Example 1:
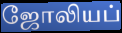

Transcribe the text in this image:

ஜோலியப்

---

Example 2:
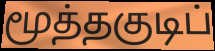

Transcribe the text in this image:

மூத்தகுடிப்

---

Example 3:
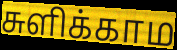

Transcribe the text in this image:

சுளிக்காம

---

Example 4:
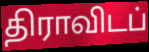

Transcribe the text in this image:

திராவிடப்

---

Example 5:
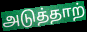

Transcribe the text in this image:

அடுத்தாற்